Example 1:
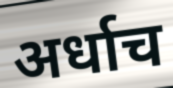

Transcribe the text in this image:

अर्धाच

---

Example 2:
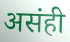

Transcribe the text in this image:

असंही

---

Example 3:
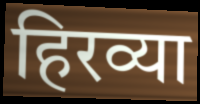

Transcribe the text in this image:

हिरव्या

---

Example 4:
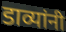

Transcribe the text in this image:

डाव्यांनी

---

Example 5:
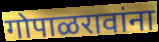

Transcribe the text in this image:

गोपाळरावांना